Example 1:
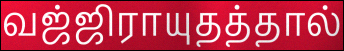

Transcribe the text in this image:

வஜ்ஜிராயுதத்தால்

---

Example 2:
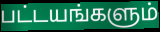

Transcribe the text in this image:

பட்டயங்களும்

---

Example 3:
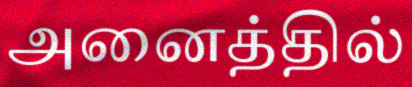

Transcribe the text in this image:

அனைத்தில்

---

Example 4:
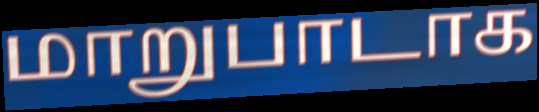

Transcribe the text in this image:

மாறுபாடாக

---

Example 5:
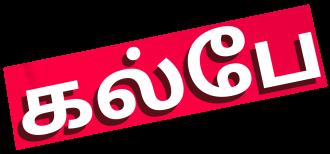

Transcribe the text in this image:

கல்பே